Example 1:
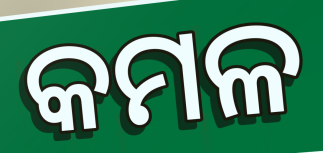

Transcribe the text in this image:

କମଳ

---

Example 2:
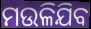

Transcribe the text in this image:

ମଉଳିଯିବ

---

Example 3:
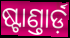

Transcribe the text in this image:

ଷ୍ଟାଣ୍ତାର୍ଡ଼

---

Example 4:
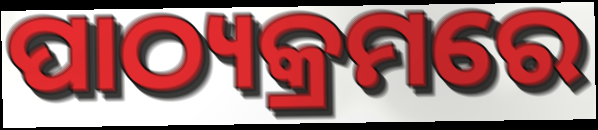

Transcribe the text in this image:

ପାଠ୍ୟକ୍ରମରେ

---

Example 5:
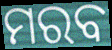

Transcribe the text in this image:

ମରବ